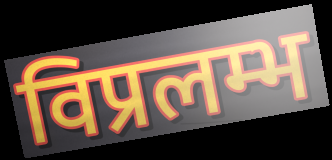
विप्रलम्भ